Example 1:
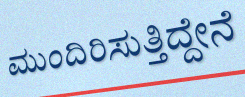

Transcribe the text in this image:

ಮುಂದಿರಿಸುತ್ತಿದ್ದೇನೆ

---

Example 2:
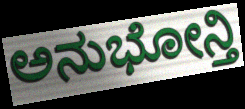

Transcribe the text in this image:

ಅನುಭೋನ್ತಿ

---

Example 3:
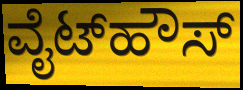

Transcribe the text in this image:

ವೈಟ್‌ಹೌಸ್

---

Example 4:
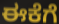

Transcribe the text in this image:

ಈಕೆಗೆ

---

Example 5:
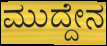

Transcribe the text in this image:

ಮುದ್ದೇನ